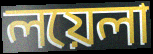
লয়েলা